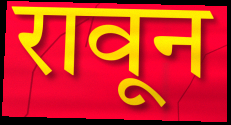
रावून